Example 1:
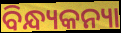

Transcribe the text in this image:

ବିନ୍ଧ୍ୟକନ୍ୟା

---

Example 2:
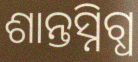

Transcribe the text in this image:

ଶାନ୍ତସ୍ନିଗ୍ଧ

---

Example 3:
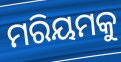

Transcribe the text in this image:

ମରିୟମକୁ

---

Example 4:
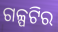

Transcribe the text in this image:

ଗଳ୍ପଟିର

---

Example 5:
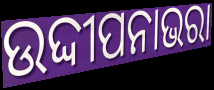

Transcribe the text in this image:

ଉଦ୍ଦୀପନାଭରା